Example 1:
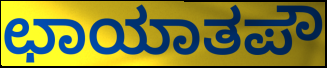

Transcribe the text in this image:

ಛಾಯಾತಪೌ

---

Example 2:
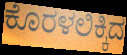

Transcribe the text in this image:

ಕೊರಳಲಿಕ್ಕಿದ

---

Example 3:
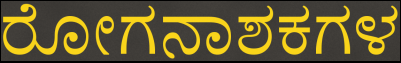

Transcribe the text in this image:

ರೋಗನಾಶಕಗಳ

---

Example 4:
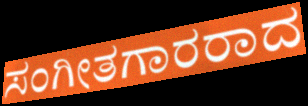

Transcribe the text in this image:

ಸಂಗೀತಗಾರರಾದ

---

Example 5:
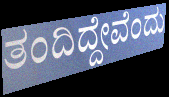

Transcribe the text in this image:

ತಂದಿದ್ದೇವೆಂದು